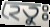
হেতুঃ